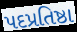
પદપ્રતિષ્ઠા